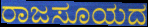
ರಾಜಸೂಯದ